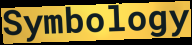
Symbology